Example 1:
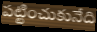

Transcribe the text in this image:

పట్టించుకునేది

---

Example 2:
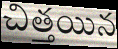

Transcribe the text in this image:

చిత్తయిన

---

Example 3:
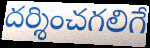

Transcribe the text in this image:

దర్శించగలిగే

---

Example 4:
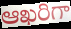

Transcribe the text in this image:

ఆఖరిగా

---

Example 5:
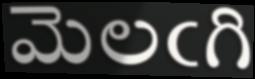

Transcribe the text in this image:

మెలఁగి